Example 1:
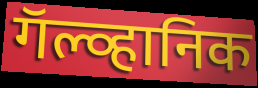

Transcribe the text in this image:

गॅल्व्हानिक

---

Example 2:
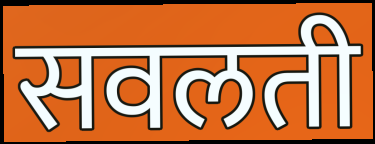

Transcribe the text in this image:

सवलती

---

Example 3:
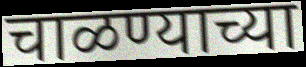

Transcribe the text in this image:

चाळण्याच्या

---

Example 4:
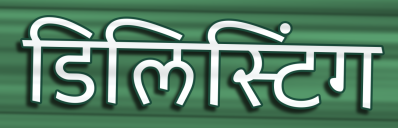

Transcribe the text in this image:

डिलिस्टिंग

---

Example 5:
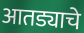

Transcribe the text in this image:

आतड्याचे